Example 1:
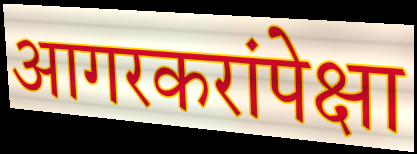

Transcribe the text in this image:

आगरकरांपेक्षा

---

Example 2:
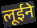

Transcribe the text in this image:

लूईने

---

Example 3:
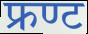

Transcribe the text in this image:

फ्रण्ट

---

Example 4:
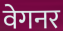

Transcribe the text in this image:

वेगनर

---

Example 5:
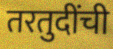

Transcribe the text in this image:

तरतुदींची